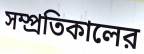
সম্প্রতিকালের